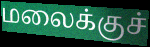
மலைக்குச்